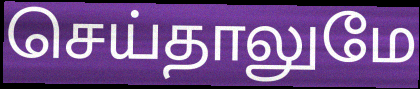
செய்தாலுமே